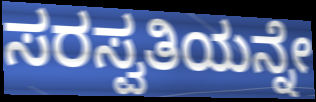
ಸರಸ್ವತಿಯನ್ನೇ